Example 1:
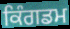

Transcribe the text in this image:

ਕਿੰਗਡਮ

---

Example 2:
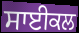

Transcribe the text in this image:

ਸਾਈਕਲ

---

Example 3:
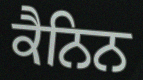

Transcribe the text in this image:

ਕੈਨਿਨ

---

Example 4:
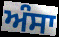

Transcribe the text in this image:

ਅੰਸਾ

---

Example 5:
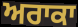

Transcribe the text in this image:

ਅਰਾਕਾ